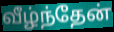
வீழ்ந்தேன்